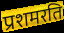
प्रशमरति